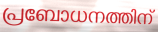
പ്രബോധനത്തിന്